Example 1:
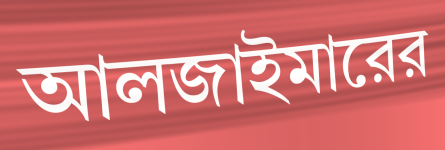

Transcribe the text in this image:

আলজাইমারের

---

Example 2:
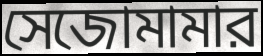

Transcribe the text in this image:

সেজোমামার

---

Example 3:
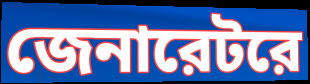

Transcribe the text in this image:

জেনারেটরে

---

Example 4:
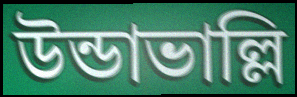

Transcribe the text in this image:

উন্ডাভাল্লি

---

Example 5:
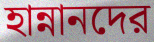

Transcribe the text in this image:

হান্নানদের